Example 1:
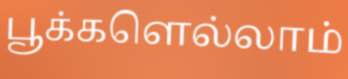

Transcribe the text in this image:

பூக்களெல்லாம்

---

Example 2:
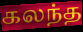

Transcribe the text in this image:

கலந்த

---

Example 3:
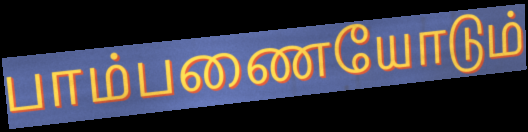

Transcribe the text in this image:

பாம்பணையோடும்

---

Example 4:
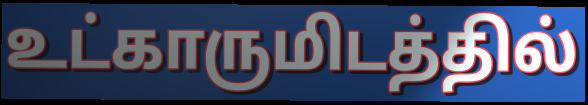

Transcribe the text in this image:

உட்காருமிடத்தில்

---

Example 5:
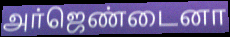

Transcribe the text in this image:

அர்ஜெண்டைனா